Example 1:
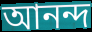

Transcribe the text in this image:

আনন্দ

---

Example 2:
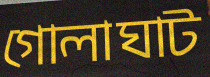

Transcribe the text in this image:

গোলাঘাট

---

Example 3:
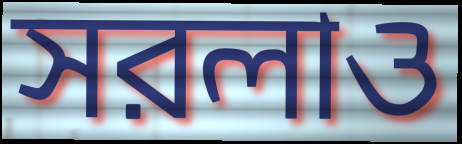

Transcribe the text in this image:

সরলাও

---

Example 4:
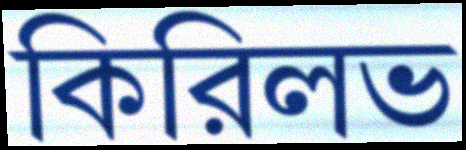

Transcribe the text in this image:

কিরিলভ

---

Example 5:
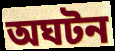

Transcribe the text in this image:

অঘটন